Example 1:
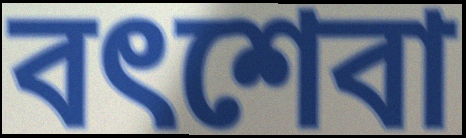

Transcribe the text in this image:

বৎশেবা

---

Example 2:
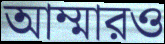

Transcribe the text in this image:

আম্মারও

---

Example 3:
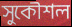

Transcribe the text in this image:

সুকৌশল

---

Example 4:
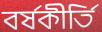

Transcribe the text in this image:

বর্ষকীর্তি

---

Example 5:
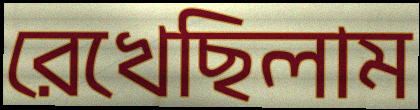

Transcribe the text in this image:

রেখেছিলাম